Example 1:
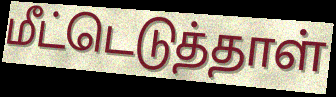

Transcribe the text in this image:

மீட்டெடுத்தாள்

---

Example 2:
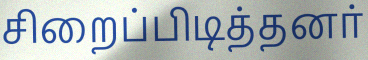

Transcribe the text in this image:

சிறைப்பிடித்தனர்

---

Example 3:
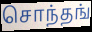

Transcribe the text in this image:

சொந்தங்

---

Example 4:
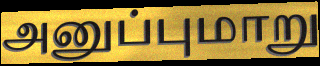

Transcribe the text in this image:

அனுப்புமாறு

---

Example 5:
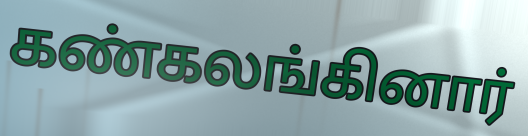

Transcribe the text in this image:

கண்கலங்கினார்